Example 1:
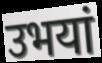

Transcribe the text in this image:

उभयां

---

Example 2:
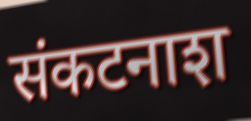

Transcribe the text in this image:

संकटनाश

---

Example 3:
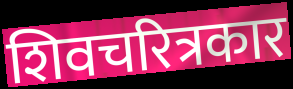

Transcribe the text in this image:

शिवचरित्रकार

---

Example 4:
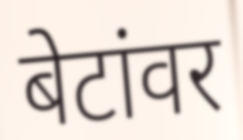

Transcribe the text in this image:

बेटांवर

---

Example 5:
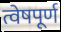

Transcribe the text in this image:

त्वेषपूर्ण